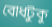
বোধটুকু